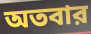
অতবার